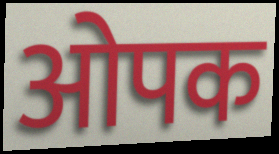
ओपक